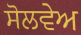
ਸੋਲਵੇਅ